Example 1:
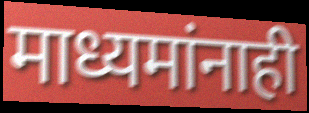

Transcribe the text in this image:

माध्यमांनाही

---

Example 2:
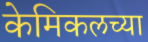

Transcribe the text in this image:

केमिकलच्या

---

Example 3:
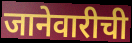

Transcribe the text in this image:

जानेवारीची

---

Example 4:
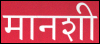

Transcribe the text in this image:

मानशी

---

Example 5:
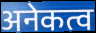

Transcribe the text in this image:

अनेकत्व